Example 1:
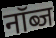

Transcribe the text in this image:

नॉब्ज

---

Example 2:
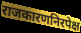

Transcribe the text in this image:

राजकारणनिरपेक्ष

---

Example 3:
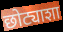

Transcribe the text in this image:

छोट्याशा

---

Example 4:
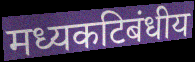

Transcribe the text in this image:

मध्यकटिबंधीय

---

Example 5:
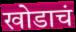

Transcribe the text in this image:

खोडाचं